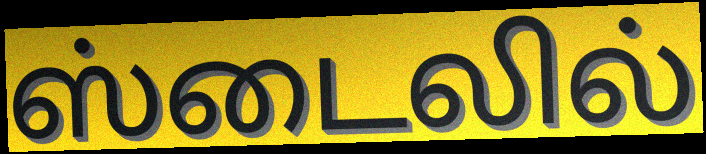
ஸ்டைலில்